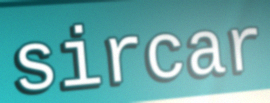
sircar